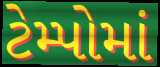
ટેમ્પોમાં